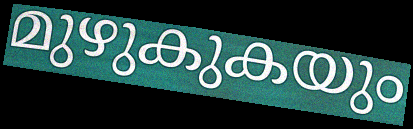
മുഴുകുകയും